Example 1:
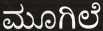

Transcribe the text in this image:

ಮೂಗಿಲೆ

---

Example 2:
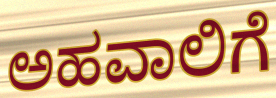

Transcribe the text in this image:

ಅಹವಾಲಿಗೆ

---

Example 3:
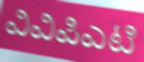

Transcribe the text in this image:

ವಿವಿಪಿಎಟಿ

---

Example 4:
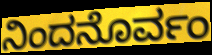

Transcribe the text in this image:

ನಿಂದನೊರ್ವಂ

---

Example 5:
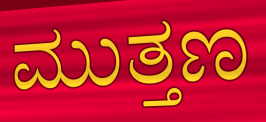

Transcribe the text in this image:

ಮುತ್ತಣ